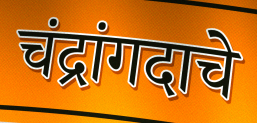
चंद्रांगदाचे